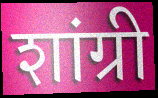
शांग्री